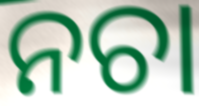
ନଚା